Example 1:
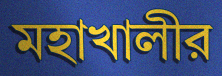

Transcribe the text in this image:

মহাখালীর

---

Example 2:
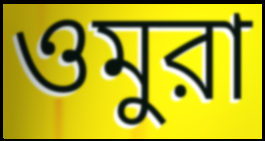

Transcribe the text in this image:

ওমুরা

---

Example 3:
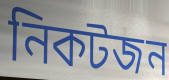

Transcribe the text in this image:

নিকটজন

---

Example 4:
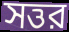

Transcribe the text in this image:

সত্তর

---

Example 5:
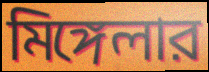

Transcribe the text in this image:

মিঙ্গেলার